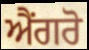
ਐਂਗਰੋ